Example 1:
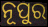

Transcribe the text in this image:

ନୂପୁର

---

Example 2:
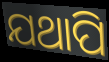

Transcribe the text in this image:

ଯଥାପି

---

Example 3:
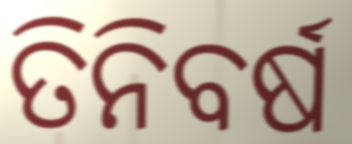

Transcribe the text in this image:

ତିନିବର୍ଷ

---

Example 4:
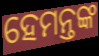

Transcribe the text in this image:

ହେମନ୍ତଙ୍କ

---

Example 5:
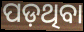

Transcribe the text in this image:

ପଡ଼ଥିବା